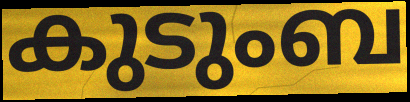
കുടുംബ